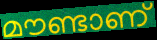
മൗണ്ടാണ്